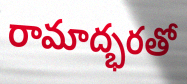
రామాద్భరతో